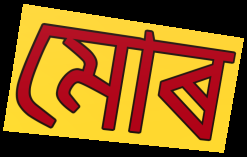
মোৰ